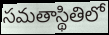
సమతాస్థితిలో